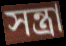
সন্ত্রা